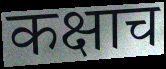
कक्षाच